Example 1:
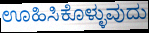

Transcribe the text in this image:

ಊಹಿಸಿಕೊಳ್ಳುವುದು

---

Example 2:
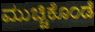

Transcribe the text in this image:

ಮುಚ್ಚಿಕೊಂಡೆ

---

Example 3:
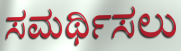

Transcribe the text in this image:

ಸಮರ್ಥಿಸಲು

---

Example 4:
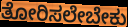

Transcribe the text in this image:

ತೋರಿಸಲೇಬೇಕು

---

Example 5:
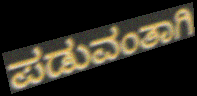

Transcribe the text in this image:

ಪಡುವಂತಾಗಿ